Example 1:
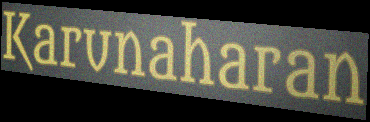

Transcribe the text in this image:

Karunaharan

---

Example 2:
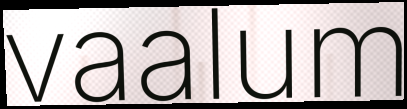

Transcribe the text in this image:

vaalum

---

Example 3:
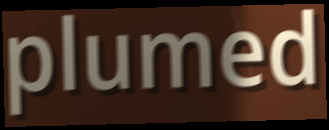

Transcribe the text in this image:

plumed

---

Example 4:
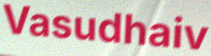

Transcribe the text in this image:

Vasudhaiv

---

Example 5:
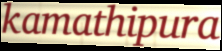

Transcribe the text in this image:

kamathipura